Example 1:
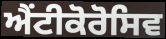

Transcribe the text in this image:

ਐਂਟੀਕੋਰੋਸਿਵ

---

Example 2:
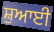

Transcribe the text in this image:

ਸ਼ੁਆਈ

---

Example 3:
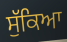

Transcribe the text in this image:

ਸੁੱਕਿਆ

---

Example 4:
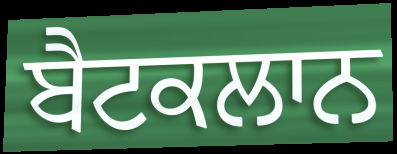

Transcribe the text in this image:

ਬੈਟਕਲਾਨ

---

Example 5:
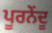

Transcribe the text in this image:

ਪੂਰਨੇਂਦੂ